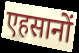
एहसानों